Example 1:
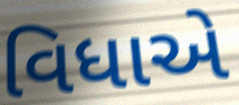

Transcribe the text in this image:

વિધાએ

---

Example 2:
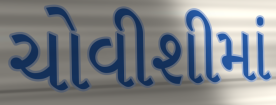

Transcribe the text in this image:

ચોવીશીમાં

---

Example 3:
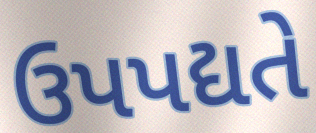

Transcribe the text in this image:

ઉપપદ્યતે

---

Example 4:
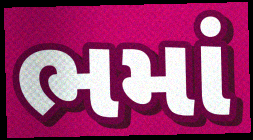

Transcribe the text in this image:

ભમાં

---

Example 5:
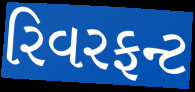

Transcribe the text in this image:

રિવરફન્ટ